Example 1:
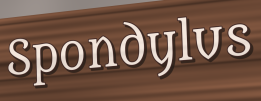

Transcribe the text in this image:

Spondylus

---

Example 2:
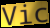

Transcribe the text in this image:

Vic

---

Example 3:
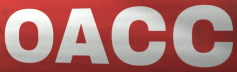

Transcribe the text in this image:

OACC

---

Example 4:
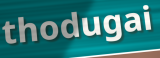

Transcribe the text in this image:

thodugai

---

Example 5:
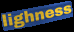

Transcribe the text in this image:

lighness